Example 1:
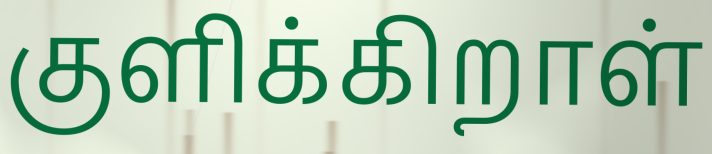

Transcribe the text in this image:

குளிக்கிறாள்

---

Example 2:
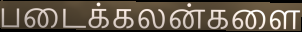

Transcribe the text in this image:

படைக்கலன்களை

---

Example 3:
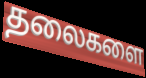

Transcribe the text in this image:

தலைகளை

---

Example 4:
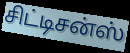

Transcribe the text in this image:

சிட்டிசன்ஸ்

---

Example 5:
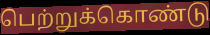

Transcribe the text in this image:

பெற்றுக்கொண்டு